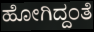
ಹೋಗಿದ್ದಂತೆ